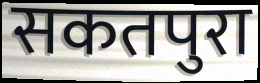
सकतपुरा